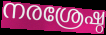
നരശ്രേഷ്ഠ